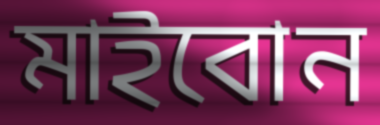
মাইবোন